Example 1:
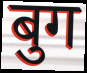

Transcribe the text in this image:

बुग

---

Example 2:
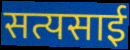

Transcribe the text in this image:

सत्यसाई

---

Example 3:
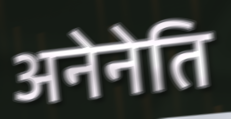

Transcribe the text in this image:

अनेनेति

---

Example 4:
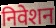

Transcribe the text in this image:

निवेशन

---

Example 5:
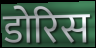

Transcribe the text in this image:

डोरिस